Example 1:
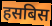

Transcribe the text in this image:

हसबिस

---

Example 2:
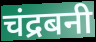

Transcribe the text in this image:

चंद्रबनी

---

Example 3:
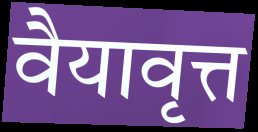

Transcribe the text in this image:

वैयावृत्त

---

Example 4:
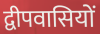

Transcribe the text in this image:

द्वीपवासियों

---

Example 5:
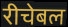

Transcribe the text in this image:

रीचेबल